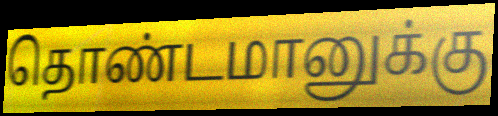
தொண்டமானுக்கு